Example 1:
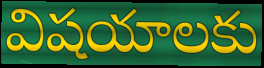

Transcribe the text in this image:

విషయాలకు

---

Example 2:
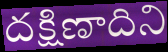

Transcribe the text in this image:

దక్షిణాదిని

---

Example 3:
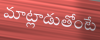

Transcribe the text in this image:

మాట్లాడుతోంటే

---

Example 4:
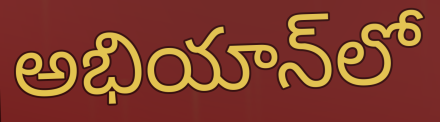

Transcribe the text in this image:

అభియాన్‌లో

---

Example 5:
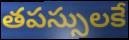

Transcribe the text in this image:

తపస్సులకే